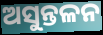
ଅସୁନ୍ତଳନ